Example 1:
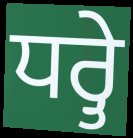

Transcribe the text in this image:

ਧਰ੍ਤੇ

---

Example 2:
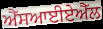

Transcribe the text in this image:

ਐੱਸਆਈਏਐੱਲ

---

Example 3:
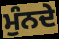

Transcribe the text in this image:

ਮੁੰਨਦੇ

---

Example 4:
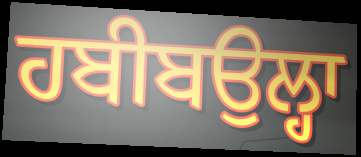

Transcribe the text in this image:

ਹਬੀਬਉਲ੍ਹਾ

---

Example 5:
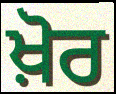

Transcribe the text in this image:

ਖ਼ੋਰ